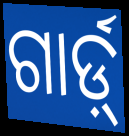
ଗାର୍ଡ଼୍